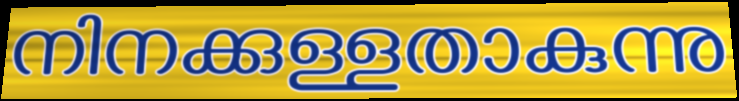
നിനക്കുള്ളതാകുന്നു